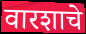
वारशाचे